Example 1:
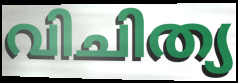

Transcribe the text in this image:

വിചിത്യ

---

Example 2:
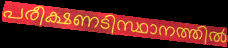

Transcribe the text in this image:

പരീക്ഷണടിസ്ഥാനത്തിൽ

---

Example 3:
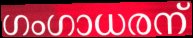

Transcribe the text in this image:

ഗംഗാധരന്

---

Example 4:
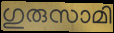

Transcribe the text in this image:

ഗുരുസാമി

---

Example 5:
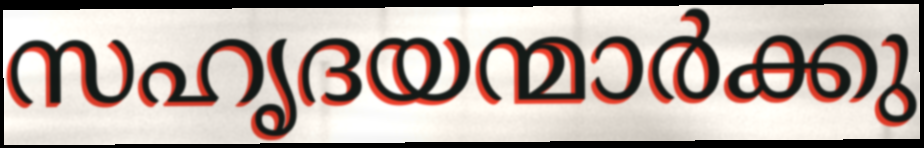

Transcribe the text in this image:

സഹൃദയന്മാർക്കു